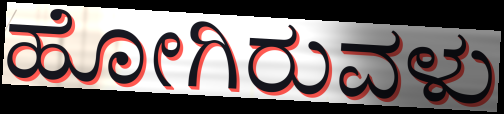
ಹೋಗಿರುವಳು